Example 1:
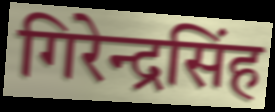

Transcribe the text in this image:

गिरेन्द्रसिंह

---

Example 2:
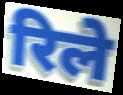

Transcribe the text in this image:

रिले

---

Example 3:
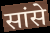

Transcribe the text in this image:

सांसे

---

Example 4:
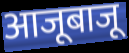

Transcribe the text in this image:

आजूबाजू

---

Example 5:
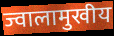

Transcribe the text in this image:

ज्वालामुखीय